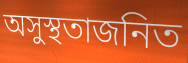
অসুস্থতাজনিত